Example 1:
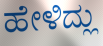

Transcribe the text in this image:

ಹೇಳಿದ್ಲು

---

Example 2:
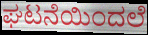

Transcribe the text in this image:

ಘಟನೆಯಿಂದಲೆ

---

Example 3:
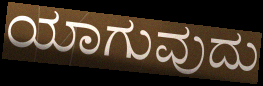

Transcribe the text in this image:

ಯಾಗುವುದು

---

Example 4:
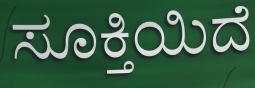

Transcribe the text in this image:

ಸೂಕ್ತಿಯಿದೆ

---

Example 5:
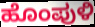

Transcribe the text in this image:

ಹೊಂಪುಳಿ